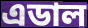
এডাল